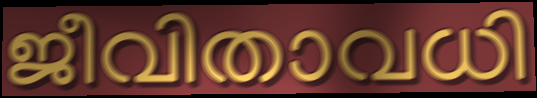
ജീവിതാവധി